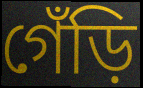
গেঁড়ি